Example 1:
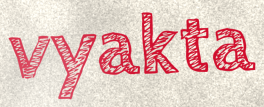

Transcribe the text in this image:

vyakta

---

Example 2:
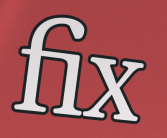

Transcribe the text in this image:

fix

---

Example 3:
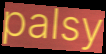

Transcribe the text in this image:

palsy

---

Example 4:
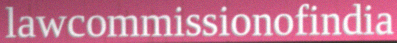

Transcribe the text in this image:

lawcommissionofindia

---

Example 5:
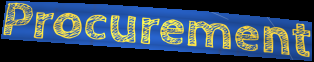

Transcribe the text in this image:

Procurement